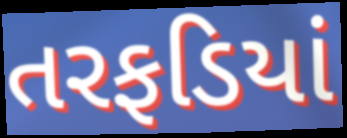
તરફડિયાં